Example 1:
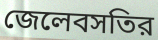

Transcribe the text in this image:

জেলেবসতির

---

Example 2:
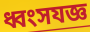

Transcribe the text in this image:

ধ্বংসযজ্ঞ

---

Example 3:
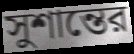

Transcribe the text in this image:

সুশান্তের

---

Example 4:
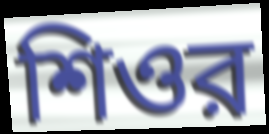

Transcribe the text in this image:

শিওর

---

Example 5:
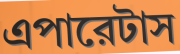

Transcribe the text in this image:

এপারেটাস